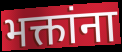
भक्तांना